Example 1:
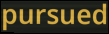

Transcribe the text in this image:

pursued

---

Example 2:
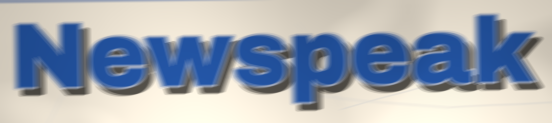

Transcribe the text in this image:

Newspeak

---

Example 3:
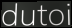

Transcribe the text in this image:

dutoi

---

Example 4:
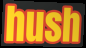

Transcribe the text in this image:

hush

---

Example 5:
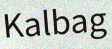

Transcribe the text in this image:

Kalbag